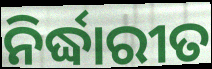
ନିର୍ଦ୍ଧାରୀତ